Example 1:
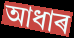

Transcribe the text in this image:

আধাৰ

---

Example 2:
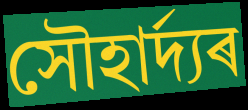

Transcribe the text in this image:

সৌহাৰ্দ্যৰ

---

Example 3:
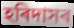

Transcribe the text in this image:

হৰিদাসৰ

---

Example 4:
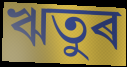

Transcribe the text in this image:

ঋতুৰ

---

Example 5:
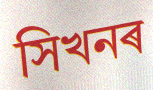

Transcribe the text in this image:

সিখনৰ